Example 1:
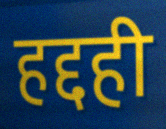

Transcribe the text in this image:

हद्दही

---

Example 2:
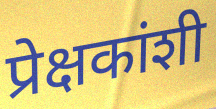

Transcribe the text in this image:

प्रेक्षकांशी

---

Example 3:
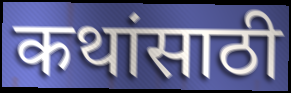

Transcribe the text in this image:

कथांसाठी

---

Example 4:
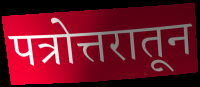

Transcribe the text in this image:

पत्रोत्तरातून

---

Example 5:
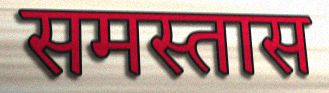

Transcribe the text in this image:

समस्तास